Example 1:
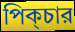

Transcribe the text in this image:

পিক্চার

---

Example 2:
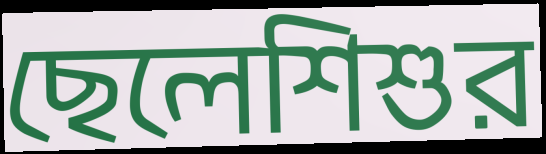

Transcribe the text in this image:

ছেলেশিশুর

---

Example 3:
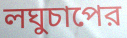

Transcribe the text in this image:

লঘুচাপের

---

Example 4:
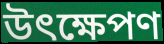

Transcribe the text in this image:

উৎক্ষেপণ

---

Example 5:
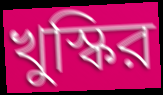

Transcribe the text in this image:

খুস্কির